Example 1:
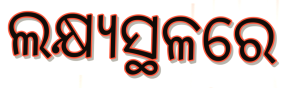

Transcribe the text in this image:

ଲକ୍ଷ୍ୟସ୍ଥଳରେ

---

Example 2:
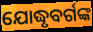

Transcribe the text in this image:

ଯୋଦ୍ଧୃବର୍ଗଙ୍କ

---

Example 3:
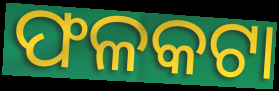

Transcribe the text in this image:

ଫଳକଟା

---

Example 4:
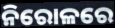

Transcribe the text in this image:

ନିରୋଳରେ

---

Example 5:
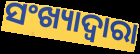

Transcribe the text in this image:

ସଂଖ୍ୟାଦ୍ୱାରା